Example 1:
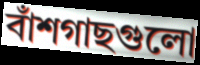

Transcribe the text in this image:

বাঁশগাছগুলো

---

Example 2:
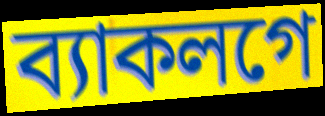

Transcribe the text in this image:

ব্যাকলগে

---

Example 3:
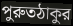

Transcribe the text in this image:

পুরুতঠাকুর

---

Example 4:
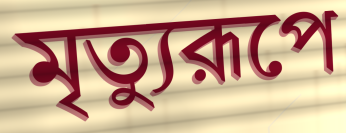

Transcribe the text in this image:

মৃত্যুরূপে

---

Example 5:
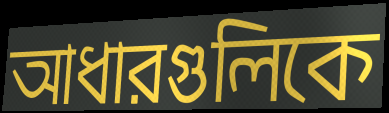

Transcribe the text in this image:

আধারগুলিকে